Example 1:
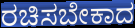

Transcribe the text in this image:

ರಚಿಸಬೇಕಾದ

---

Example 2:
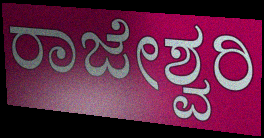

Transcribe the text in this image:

ರಾಜೇಶ್ವರಿ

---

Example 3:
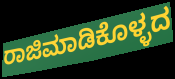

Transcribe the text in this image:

ರಾಜಿಮಾಡಿಕೊಳ್ಳದ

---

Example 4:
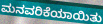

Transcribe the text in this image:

ಮನವರಿಕೆಯಾಯಿತು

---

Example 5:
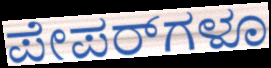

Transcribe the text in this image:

ಪೇಪರ್‌ಗಳೂ